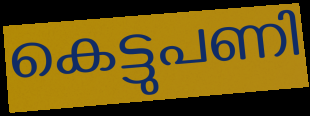
കെട്ടുപണി